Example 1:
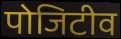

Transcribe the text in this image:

पोजिटीव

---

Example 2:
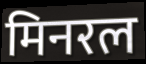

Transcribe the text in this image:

मिनरल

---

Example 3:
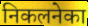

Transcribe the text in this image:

निकलनेका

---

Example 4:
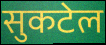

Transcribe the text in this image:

सुकटेल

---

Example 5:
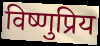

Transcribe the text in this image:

विष्णुप्रिय